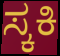
ಸ್ಕಕಿ